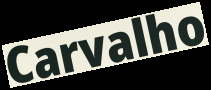
Carvalho